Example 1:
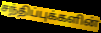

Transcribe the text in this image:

சந்திப்புக்களின்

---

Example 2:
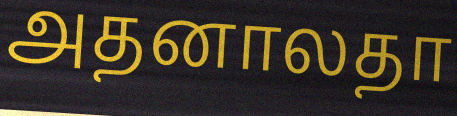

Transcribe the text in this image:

அதனாலதா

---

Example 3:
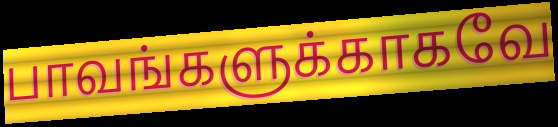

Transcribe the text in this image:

பாவங்களுக்காகவே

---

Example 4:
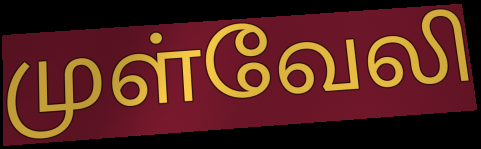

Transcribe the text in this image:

முள்வேலி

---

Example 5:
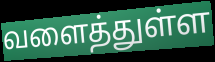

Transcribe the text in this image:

வளைத்துள்ள